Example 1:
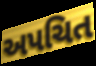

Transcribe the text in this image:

અપચિત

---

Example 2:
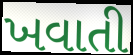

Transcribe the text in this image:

ખવાતી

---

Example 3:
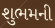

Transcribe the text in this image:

શુભમની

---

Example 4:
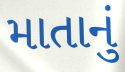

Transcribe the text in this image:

માતાનું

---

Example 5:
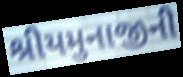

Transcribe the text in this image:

શ્રીયમુનાજીની